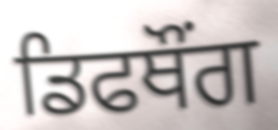
ਡਿਫਥੌਂਗ